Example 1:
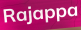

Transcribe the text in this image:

Rajappa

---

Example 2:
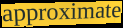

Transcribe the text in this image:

approximate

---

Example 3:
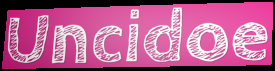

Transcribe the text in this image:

Uncidoe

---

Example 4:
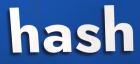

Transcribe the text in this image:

hash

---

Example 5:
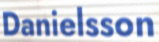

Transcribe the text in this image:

Danielsson